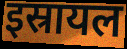
इस्रायल